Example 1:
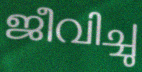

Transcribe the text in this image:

ജീവിച്ചു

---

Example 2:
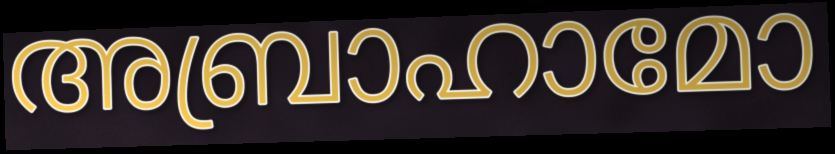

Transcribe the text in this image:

അബ്രാഹാമോ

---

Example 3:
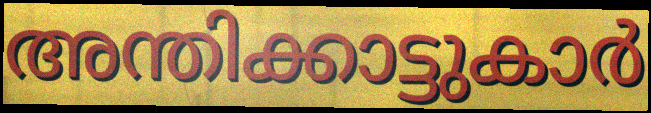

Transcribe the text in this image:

അന്തിക്കാട്ടുകാർ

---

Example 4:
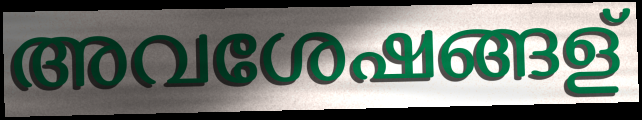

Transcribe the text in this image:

അവശേഷങ്ങള്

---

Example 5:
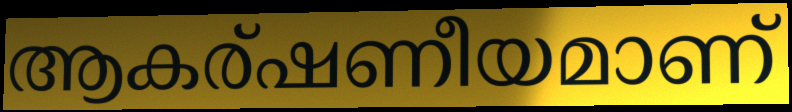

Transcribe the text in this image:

ആകര്ഷണീയമാണ്